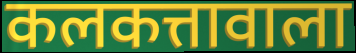
कलकत्तावाला